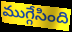
ముగ్గేసింది